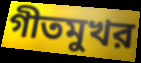
গীতমুখর